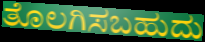
ತೊಲಗಿಸಬಹುದು